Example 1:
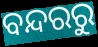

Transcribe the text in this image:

ବନ୍ଦରରୁ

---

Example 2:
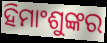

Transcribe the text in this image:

ହିମାଂଶୁଙ୍କର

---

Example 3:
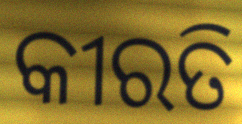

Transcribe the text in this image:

କୀରତି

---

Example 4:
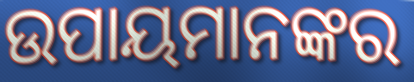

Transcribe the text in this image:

ଉପାୟମାନଙ୍କର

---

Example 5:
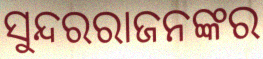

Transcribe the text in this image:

ସୁନ୍ଦରରାଜନଙ୍କର